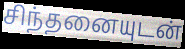
சிந்தனையுடன்